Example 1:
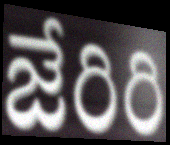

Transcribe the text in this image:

జేరిరి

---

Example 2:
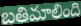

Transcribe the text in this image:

బతిమాలింది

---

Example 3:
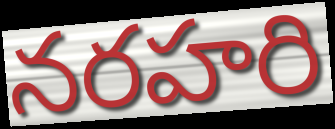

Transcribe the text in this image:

నరహరి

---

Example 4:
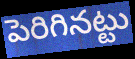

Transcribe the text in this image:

పెరిగినట్టు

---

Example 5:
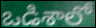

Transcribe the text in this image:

ఒడిశాలో